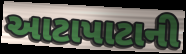
આટાપાટાની